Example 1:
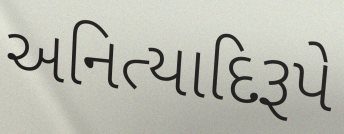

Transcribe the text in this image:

અનિત્યાદિરૂપે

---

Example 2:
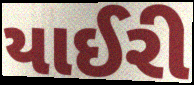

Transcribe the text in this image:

યાઈરી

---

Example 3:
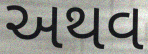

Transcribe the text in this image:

અથવ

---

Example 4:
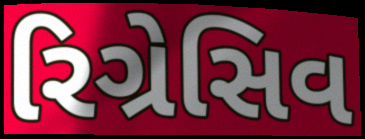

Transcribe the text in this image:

રિગ્રેસિવ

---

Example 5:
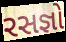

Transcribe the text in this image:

રસજ્ઞો